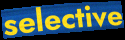
selective